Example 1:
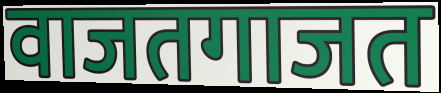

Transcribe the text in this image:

वाजतगाजत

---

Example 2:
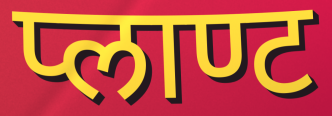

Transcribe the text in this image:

प्लाण्ट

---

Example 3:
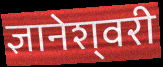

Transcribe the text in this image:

ज्ञानेश्वरी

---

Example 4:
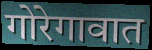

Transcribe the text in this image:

गोरेगावात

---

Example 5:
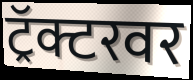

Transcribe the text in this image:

ट्रॅक्टरवर